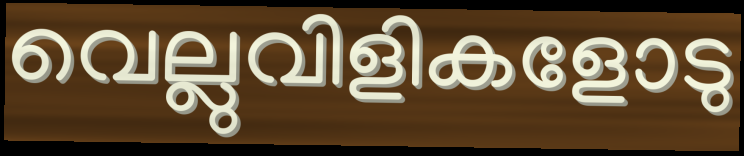
വെല്ലുവിളികളോടു